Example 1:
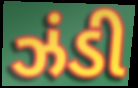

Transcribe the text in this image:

ઝંડી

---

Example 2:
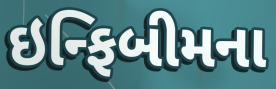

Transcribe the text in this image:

ઇન્ફિબીમના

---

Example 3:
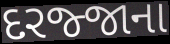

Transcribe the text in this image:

દરજ્જાના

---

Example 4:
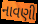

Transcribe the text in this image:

નાવણી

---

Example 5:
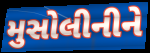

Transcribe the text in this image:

મુસોલીનીને